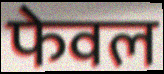
फेवल